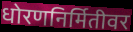
धोरणनिर्मितीवर